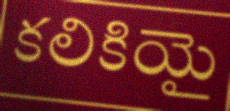
కలికియై